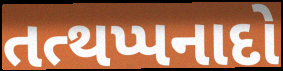
તત્થપ્પનાદો